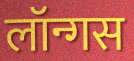
लॉन्गस